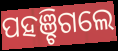
ପହଞ୍ଚିଗଲେ